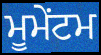
ਮੂਮੇਂਟਮ